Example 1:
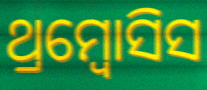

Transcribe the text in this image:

ଥ୍ରମ୍ବୋସିସ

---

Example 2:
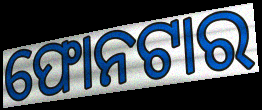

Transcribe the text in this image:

ଫୋନଟାର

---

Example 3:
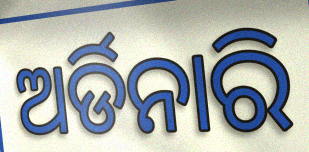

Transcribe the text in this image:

ଅର୍ଡିନାରି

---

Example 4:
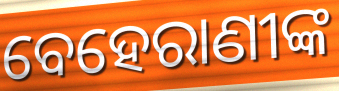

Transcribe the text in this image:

ବେହେରାଣୀଙ୍କ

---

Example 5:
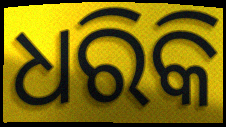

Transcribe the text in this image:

ଧରିକି